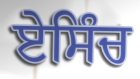
ਏਸਿੰਚ